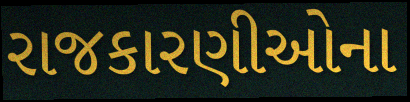
રાજકારણીઓના